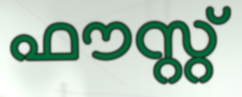
ഫൗസ്റ്റ്